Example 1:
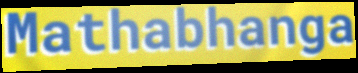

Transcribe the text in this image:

Mathabhanga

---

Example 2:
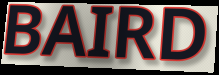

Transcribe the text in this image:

BAIRD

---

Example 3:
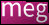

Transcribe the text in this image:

meg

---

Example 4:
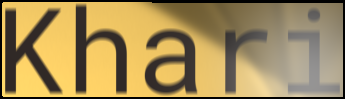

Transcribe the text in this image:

Khari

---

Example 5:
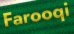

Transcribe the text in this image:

Farooqi